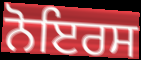
ਨੋਇਰਸ